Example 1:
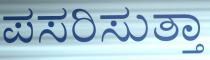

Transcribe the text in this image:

ಪಸರಿಸುತ್ತಾ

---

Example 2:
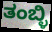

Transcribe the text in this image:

ತಂಬ್ಳಿ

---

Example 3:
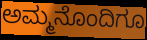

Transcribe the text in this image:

ಅಮ್ಮನೊಂದಿಗೂ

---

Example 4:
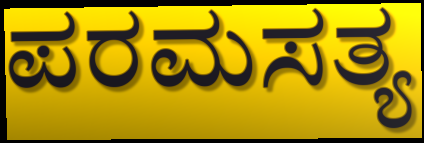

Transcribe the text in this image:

ಪರಮಸತ್ಯ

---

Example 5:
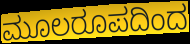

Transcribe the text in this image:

ಮೂಲರೂಪದಿಂದ